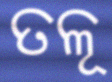
ତଳୂ